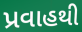
પ્રવાહથી